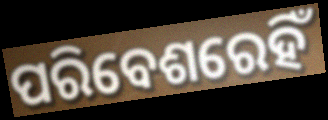
ପରିବେଶରେହିଁ